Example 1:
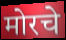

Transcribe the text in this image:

मोरचे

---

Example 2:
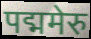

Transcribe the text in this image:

पद्ममेरु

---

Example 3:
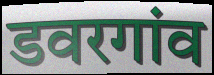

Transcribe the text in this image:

डवरगांव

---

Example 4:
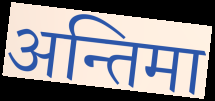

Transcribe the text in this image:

अन्तिमा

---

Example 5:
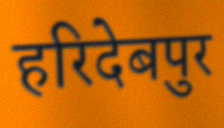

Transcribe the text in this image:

हरिदेबपुर